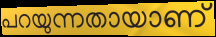
പറയുന്നതായാണ്